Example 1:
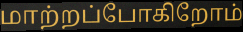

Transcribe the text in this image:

மாற்றப்போகிறோம்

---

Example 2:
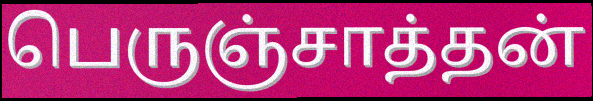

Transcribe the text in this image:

பெருஞ்சாத்தன்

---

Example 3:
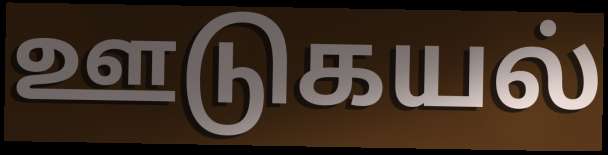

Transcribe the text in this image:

ஊடுகயல்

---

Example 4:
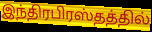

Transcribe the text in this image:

இந்திரபிரஸ்தத்தில்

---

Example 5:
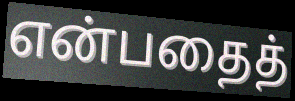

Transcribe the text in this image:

என்பதைத்